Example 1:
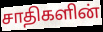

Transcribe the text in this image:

சாதிகளின்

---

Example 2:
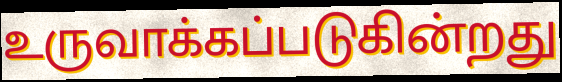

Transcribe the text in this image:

உருவாக்கப்படுகின்றது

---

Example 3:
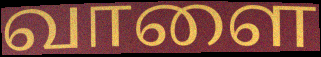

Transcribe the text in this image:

வாளை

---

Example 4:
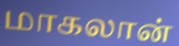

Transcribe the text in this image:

மாகலான்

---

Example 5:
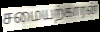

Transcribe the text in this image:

சமையற்காரன்